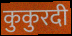
कुकुरदी